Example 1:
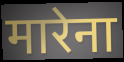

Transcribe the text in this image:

मारेना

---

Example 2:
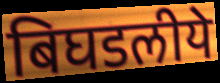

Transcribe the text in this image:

बिघडलीये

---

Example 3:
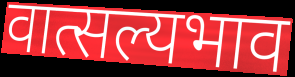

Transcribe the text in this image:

वात्सल्यभाव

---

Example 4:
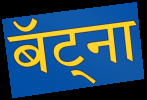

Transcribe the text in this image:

बॅट्ना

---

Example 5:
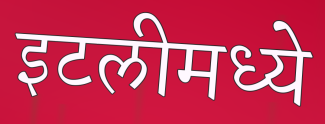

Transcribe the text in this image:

इटलीमध्ये